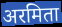
अरमिता